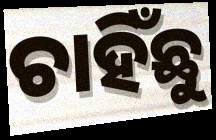
ଚାହିଁଛୁ